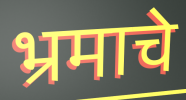
भ्रमाचे